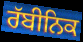
ਰੱਬੀਨਿਕ